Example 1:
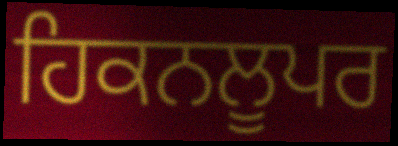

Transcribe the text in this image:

ਹਿਕਨਲੂਪਰ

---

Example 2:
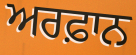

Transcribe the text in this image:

ਅਰਫ਼ਾਨ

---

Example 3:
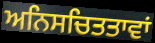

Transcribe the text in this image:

ਅਨਿਸਚਿਤਤਾਵਾਂ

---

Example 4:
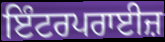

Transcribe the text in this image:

ਇੰਟਰਪਰਾਈਜ਼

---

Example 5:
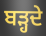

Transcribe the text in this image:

ਬੜ੍ਹਦੇ